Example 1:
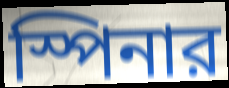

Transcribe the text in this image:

স্পিনার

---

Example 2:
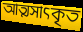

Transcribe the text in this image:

আত্মসাৎকৃত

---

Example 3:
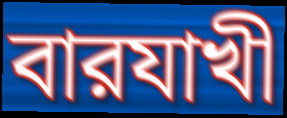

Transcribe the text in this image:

বারযাখী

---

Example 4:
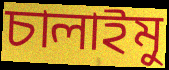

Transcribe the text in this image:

চালাইমু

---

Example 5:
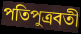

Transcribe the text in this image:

পতিপুত্রবতী